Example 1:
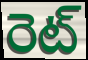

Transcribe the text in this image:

రెట్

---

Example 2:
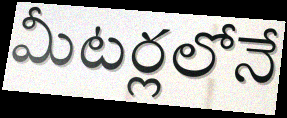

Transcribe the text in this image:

మీటర్లలోనే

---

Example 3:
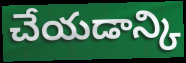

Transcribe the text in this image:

చేయడాన్కి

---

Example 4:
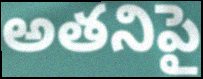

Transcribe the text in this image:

అతనిపై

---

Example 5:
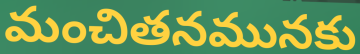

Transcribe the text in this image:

మంచితనమునకు